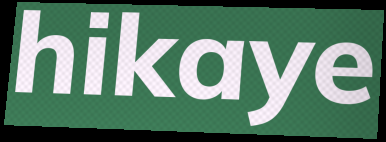
hikaye